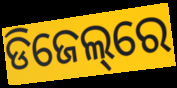
ଡିଜେଲ୍‌ରେ